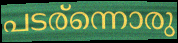
പടര്ന്നൊരു